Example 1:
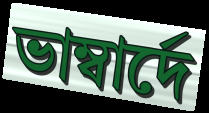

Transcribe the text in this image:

ভাম্বাৰ্দে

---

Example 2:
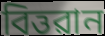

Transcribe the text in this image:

বিত্তৱান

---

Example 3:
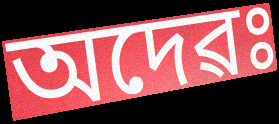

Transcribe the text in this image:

অদেৱঃ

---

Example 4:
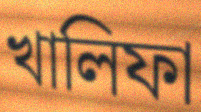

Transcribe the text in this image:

খালিফা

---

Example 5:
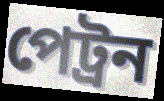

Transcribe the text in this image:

পেট্ৰন